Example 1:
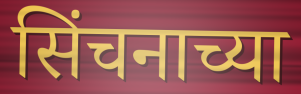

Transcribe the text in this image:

सिंचनाच्या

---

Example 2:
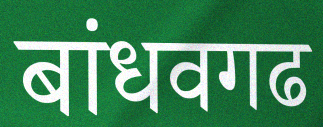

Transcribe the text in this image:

बांधवगढ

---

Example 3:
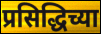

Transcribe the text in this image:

प्रसिद्धिच्या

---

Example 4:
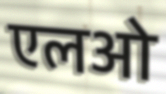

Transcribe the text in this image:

एलओ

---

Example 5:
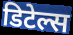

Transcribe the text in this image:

डिटेल्स